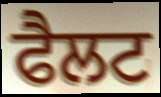
ਫੈਲਟ